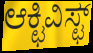
ಆಕ್ಟಿವಿಸ್ಟ್